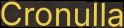
Cronulla